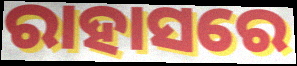
ରାହାସରେ